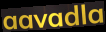
aavadla